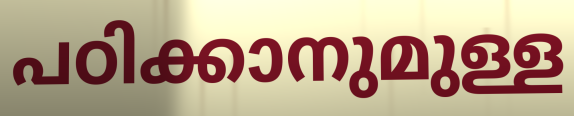
പഠിക്കാനുമുള്ള